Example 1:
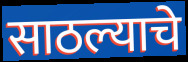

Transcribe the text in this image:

साठल्याचे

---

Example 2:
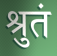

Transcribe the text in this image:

श्रुतं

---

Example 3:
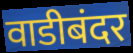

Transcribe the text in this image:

वाडीबंदर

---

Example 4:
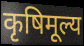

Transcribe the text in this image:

कृषिमूल्य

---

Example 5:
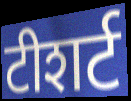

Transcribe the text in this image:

टीशर्ट